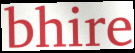
bhire